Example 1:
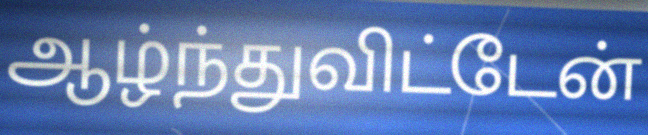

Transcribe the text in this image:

ஆழ்ந்துவிட்டேன்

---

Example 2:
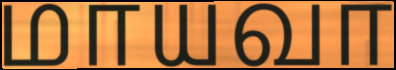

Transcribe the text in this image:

மாயவா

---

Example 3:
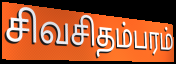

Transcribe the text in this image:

சிவசிதம்பரம்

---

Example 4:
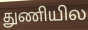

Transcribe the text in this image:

துணியில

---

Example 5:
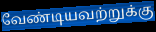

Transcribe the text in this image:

வேண்டியவற்றுக்கு